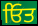
ਓਿਤ